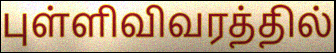
புள்ளிவிவரத்தில்